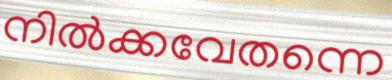
നിൽക്കവേതന്നെ